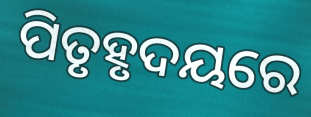
ପିତୃହୃଦୟରେ